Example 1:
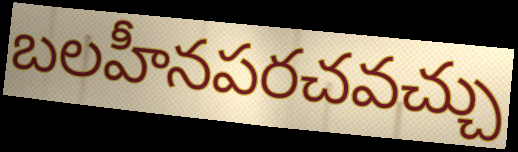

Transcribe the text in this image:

బలహీనపరచవచ్చు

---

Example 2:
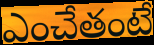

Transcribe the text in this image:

ఎంచేతంటే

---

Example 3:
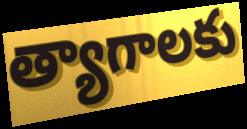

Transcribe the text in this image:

త్యాగాలకు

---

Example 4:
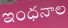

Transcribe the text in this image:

ఇంధనాల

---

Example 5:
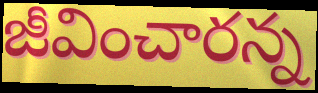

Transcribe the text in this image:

జీవించారన్న